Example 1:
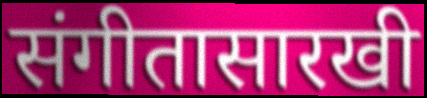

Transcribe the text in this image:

संगीतासारखी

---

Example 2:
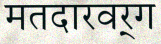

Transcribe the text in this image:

मतदारवर्ग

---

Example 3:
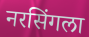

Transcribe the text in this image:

नरसिंगला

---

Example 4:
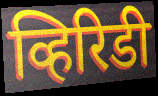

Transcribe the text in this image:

व्हिरिडी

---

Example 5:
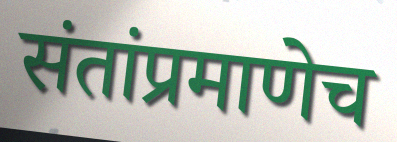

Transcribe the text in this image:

संतांप्रमाणेच